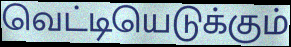
வெட்டியெடுக்கும்